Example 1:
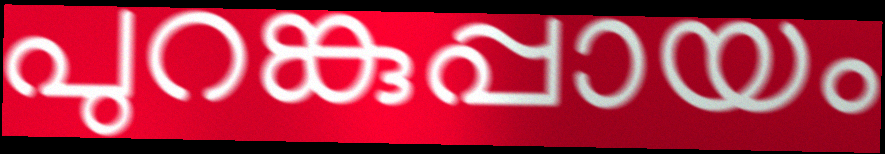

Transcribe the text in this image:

പുറങ്കുപ്പായം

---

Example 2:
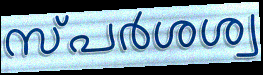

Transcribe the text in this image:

സ്പർശശ്വ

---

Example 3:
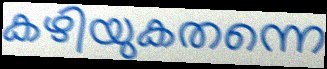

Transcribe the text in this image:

കഴിയുകതന്നെ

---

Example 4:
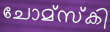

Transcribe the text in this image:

ചോമ്സ്കി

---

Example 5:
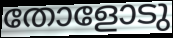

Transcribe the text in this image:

തോളോടു